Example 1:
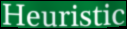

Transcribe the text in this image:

Heuristic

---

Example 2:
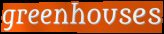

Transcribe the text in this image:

greenhouses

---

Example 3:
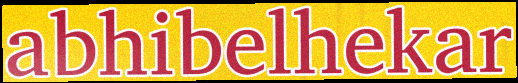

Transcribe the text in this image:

abhibelhekar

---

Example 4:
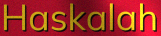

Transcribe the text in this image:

Haskalah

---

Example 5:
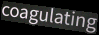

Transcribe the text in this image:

coagulating